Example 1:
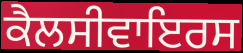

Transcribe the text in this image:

ਕੈਲਸੀਵਾਇਰਸ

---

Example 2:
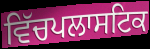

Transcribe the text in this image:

ਵਿੱਚਪਲਾਸਟਿਕ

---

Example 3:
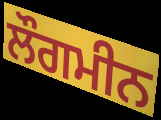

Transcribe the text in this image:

ਲੌਗਮੀਨ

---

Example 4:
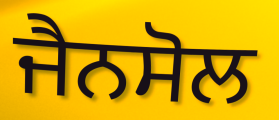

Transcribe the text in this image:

ਜੈਨਸੋਲ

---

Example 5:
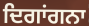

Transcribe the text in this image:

ਦਿਗਾਂਗਨਾ